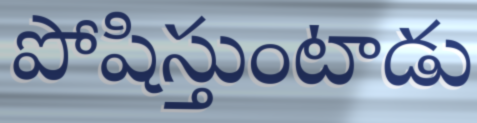
పోషిస్తుంటాడు